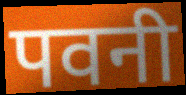
पवनी